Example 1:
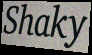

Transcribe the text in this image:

Shaky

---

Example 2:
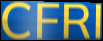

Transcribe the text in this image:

CFRI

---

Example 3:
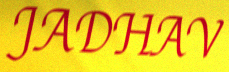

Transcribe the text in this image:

JADHAV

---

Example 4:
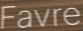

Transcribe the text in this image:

Favre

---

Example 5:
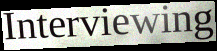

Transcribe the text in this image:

Interviewing